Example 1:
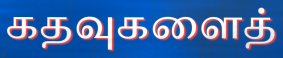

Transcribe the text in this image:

கதவுகளைத்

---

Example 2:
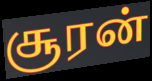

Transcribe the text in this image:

சூரன்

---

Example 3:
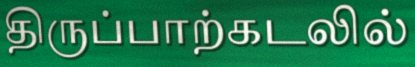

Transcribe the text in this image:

திருப்பாற்கடலில்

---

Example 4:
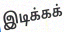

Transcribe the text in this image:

இடிக்கக்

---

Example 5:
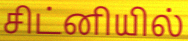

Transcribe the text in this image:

சிட்னியில்